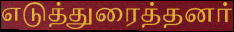
எடுத்துரைத்தனர்